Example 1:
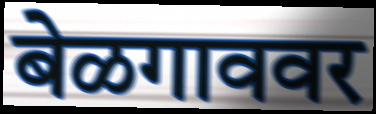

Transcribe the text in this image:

बेळगाववर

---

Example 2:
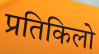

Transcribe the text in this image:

प्रतिकिलो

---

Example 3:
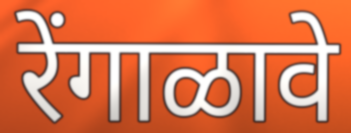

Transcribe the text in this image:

रेंगाळावे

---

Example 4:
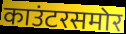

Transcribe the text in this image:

काउंटरसमोर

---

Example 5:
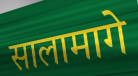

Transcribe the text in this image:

सालामागे